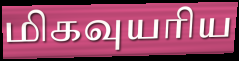
மிகவுயரிய